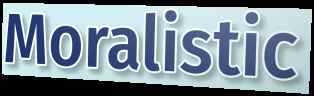
Moralistic